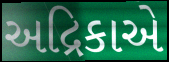
અદ્રિકાએ